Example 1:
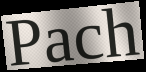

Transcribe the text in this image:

Pach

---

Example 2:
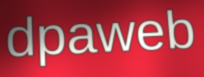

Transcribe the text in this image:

dpaweb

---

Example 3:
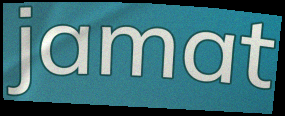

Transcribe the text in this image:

jamat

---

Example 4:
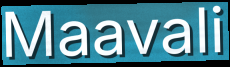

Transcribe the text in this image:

Maavali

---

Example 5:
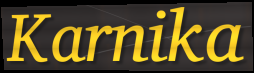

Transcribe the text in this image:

Karnika